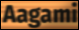
Aagami